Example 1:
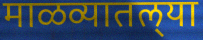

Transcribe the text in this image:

माळव्यातल्या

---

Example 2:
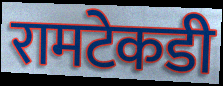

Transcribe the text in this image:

रामटेकडी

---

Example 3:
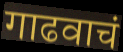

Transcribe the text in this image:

गाढवाचं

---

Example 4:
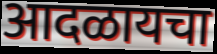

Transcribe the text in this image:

आदळायचा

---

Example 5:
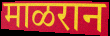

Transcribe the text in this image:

माळरान